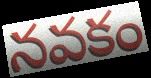
నవకం